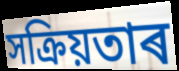
সক্ৰিয়তাৰ